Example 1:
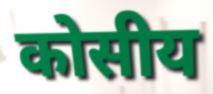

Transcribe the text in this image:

कोसीय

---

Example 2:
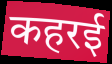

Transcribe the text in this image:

कहरई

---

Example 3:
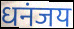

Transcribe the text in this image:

धनंजय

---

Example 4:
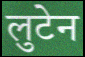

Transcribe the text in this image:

लुटेन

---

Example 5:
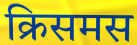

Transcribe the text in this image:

क्रिसमस